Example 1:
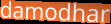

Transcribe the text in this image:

damodhar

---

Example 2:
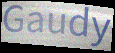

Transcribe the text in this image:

Gaudy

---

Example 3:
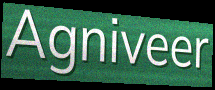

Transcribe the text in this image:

Agniveer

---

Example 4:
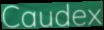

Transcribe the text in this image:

Caudex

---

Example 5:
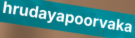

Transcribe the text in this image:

hrudayapoorvaka